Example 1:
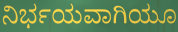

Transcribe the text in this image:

ನಿರ್ಭಯವಾಗಿಯೂ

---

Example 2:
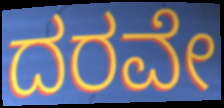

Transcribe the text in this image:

ದರವೇ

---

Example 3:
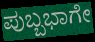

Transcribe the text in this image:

ಪುಬ್ಬಭಾಗೇ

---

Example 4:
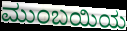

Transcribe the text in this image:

ಮುಂಬಯಿಯ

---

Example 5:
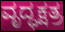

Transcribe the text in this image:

ವೃದ್ಧಕ್ಷತ್ರ